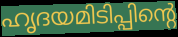
ഹൃദയമിടിപ്പിന്റെ